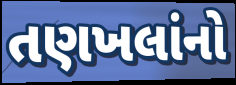
તણખલાંનો